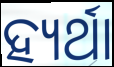
ହ୍ୟର୍ଥା